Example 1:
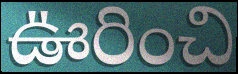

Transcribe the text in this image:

ఊరించి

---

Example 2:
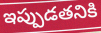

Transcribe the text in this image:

ఇప్పుడతనికి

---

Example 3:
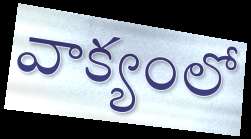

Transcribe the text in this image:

వాక్యంలో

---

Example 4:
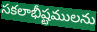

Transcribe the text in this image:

సకలాభీష్టములను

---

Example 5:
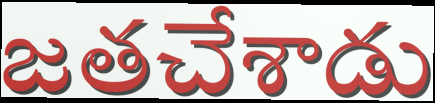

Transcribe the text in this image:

జతచేశాడు